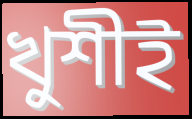
খুশীই